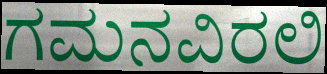
ಗಮನವಿರಲಿ